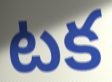
టక